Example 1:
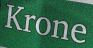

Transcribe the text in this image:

Krone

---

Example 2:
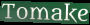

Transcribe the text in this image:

Tomake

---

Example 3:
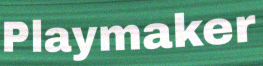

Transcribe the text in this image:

Playmaker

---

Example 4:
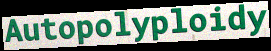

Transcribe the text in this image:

Autopolyploidy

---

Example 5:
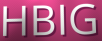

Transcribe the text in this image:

HBIG